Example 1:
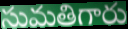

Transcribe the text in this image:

సుమతిగారు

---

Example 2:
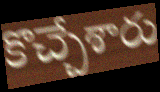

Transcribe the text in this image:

కొచ్చేశారు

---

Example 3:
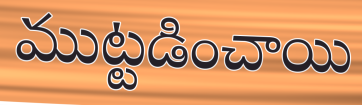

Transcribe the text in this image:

ముట్టడించాయి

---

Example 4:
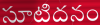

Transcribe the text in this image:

సూటిదనం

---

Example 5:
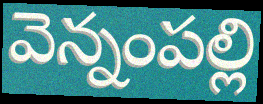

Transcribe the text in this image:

వెన్నంపల్లి